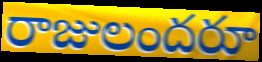
రాజులందరూ